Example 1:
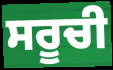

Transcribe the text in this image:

ਸਰੂਚੀ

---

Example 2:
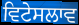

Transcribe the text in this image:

ਵਿਟੇਸਲਾਵ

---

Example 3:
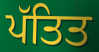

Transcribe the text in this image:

ਪੱਤਿਤ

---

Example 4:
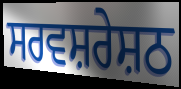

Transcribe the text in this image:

ਸਰਵਸ਼ਰੇਸ਼ਠ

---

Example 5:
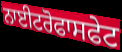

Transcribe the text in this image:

ਨਾਈਟਰੋਫਾਸਫੇਟ